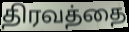
திரவத்தை